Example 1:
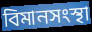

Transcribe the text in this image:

বিমানসংস্থা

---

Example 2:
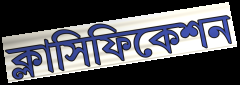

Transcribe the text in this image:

ক্লাসিফিকেশন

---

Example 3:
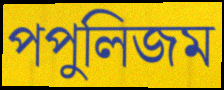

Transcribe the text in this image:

পপুলিজম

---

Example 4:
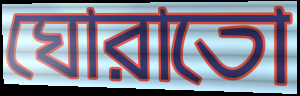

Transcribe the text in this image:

ঘোরাতো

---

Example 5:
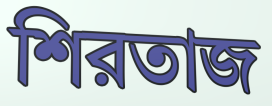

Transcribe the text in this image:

শিরতাজ